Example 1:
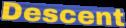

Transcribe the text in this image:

Descent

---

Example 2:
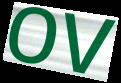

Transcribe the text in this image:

ov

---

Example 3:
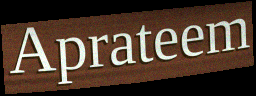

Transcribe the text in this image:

Aprateem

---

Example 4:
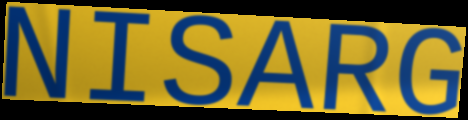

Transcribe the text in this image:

NISARG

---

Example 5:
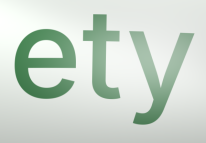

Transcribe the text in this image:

ety